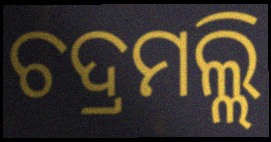
ଚଦ୍ରମଲ୍ଲି